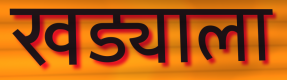
खड्याला